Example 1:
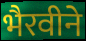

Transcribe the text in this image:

भैरवीने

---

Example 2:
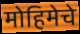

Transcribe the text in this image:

मोहिमेचे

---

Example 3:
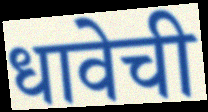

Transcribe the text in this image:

धावेची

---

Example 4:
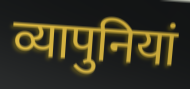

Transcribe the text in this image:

व्यापुनियां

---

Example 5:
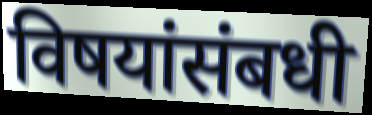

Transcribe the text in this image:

विषयांसंबधी